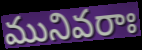
మునివరాః